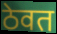
ठेवत